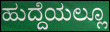
ಹುದ್ದೆಯಲ್ಲೂ